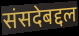
संसदेबद्दल